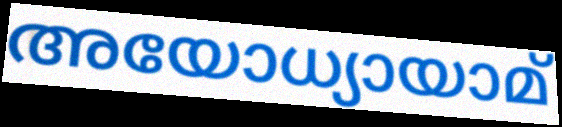
അയോധ്യായാമ്